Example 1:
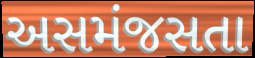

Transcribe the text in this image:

અસમંજસતા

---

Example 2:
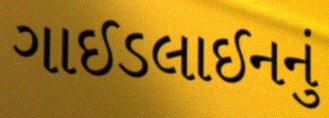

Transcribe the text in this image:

ગાઈડલાઈનનું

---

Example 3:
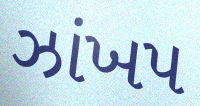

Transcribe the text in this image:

ઝાંખપ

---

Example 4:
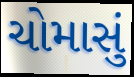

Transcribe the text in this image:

ચોમાસું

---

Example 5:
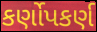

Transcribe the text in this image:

કર્ણોપકર્ણ